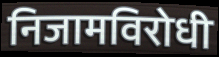
निजामविरोधी